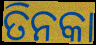
ତିନକା